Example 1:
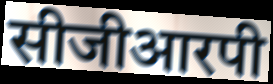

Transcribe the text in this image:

सीजीआरपी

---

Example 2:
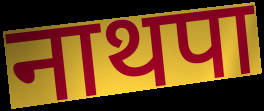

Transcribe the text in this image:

नाथपा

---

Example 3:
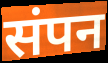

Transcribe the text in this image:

संपन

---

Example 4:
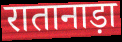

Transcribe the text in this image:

रातानाड़ा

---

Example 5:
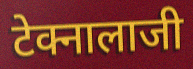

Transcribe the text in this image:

टेक्नालाजी